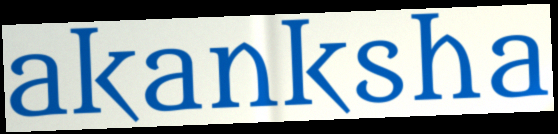
akanksha